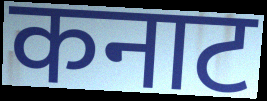
कनाट